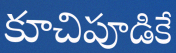
కూచిపూడికే